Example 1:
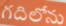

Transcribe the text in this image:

గదిలోను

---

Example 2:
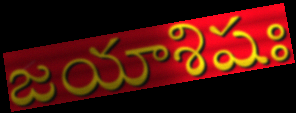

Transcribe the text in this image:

జయాశిషః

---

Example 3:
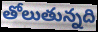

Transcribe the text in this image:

తోలుతున్నది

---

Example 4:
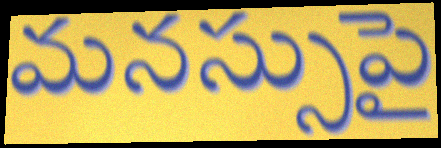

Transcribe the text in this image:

మనస్సుపై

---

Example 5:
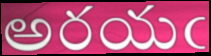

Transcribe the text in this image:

అరయఁ